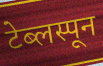
टेब्लस्पून